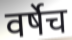
वर्षेच